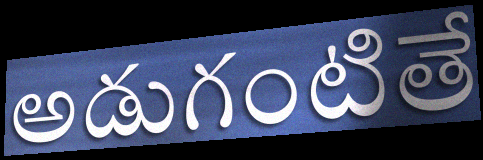
అడుగంటితే